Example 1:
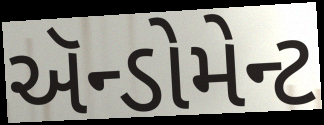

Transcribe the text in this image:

ઍન્ડોમેન્ટ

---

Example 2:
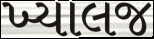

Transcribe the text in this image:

ખ્યાલજ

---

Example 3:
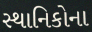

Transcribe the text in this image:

સ્થાનિકોના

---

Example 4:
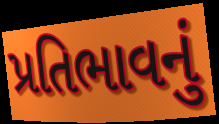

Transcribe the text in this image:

પ્રતિભાવનું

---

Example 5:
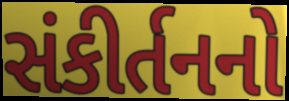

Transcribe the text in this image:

સંકીર્તનનો